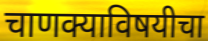
चाणक्याविषयीचा